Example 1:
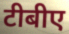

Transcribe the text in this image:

टीबीए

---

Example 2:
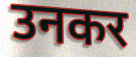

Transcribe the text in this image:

उनकर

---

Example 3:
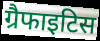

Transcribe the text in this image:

ग्रैफाइटिस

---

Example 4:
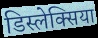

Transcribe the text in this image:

डिस्लेक्सिया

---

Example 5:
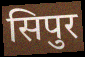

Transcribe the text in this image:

सिपुर